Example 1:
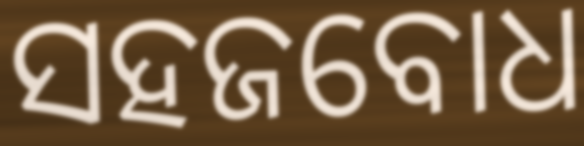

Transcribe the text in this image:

ସହଜବୋଧ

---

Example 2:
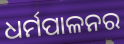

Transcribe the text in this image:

ଧର୍ମପାଳନର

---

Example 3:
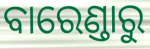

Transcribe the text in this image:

ବାରେଣ୍ଡାରୁ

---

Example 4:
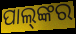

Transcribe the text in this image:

ପାଲ୍‍ଙ୍କର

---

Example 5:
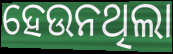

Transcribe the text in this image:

ହେଉନଥିଲା